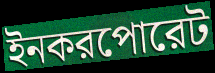
ইনকরপোরেট